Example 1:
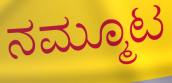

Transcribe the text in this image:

ನಮ್ಮೂಟ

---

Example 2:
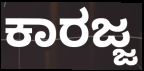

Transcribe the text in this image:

ಕಾರಜ್ಜ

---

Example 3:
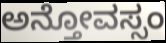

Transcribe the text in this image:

ಅನ್ತೋವಸ್ಸಂ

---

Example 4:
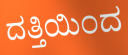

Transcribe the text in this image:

ದತ್ತಿಯಿಂದ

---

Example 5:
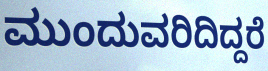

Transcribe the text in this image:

ಮುಂದುವರಿದಿದ್ದರೆ